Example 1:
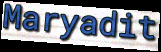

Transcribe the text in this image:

Maryadit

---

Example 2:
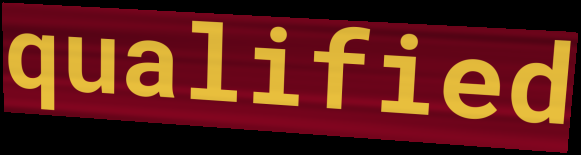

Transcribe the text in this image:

qualified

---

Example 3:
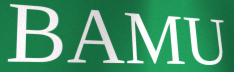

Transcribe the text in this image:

BAMU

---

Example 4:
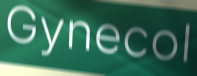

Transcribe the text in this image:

Gynecol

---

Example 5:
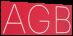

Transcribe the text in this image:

AGB